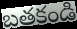
బతకండి